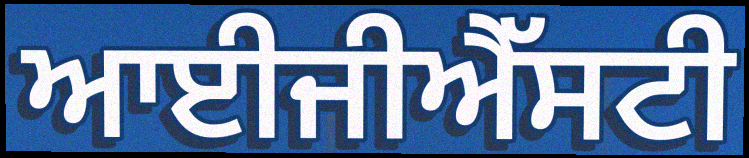
ਆਈਜੀਐੱਸਟੀ